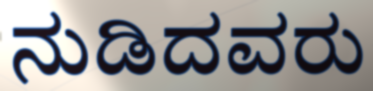
ನುಡಿದವರು